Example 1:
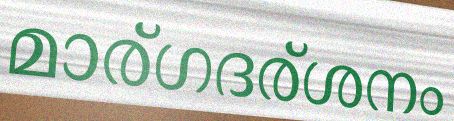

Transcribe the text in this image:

മാര്ഗദര്ശനം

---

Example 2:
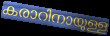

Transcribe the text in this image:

കരാറിനായുള്ള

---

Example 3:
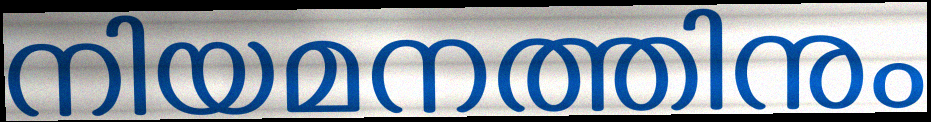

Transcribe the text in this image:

നിയമനത്തിനും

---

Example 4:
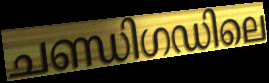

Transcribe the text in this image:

ചണ്ഡിഗഡിലെ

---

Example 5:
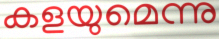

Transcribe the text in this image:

കളയുമെന്നു